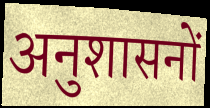
अनुशासनों